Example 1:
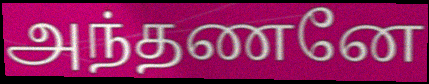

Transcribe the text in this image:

அந்தணனே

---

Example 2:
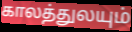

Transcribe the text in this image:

காலத்துலயும்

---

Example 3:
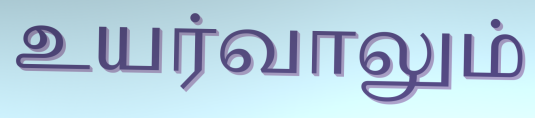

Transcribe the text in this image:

உயர்வாலும்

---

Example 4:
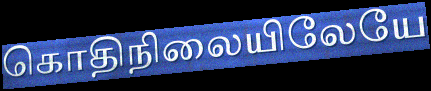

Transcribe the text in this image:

கொதிநிலையிலேயே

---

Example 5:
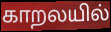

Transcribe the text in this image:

காறலயில்